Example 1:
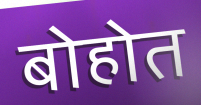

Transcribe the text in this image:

बोहोत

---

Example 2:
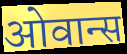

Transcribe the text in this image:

ओवान्स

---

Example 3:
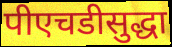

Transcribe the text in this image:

पीएचडीसुद्धा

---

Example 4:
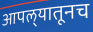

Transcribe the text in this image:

आपल्यातूनच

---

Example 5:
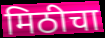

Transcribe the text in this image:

मिठीचा